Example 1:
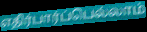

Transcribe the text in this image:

எதிர்பார்ப்பெல்லாம்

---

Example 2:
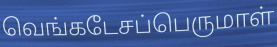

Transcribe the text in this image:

வெங்கடேசப்பெருமாள்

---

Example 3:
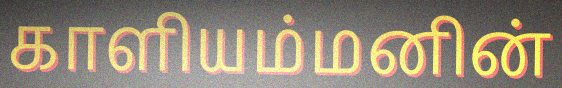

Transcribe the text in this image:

காளியம்மனின்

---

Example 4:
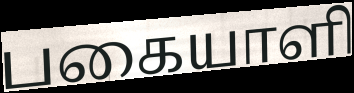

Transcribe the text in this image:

பகையாளி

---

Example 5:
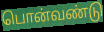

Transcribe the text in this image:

பொன்வண்டு